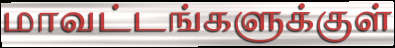
மாவட்டங்களுக்குள்